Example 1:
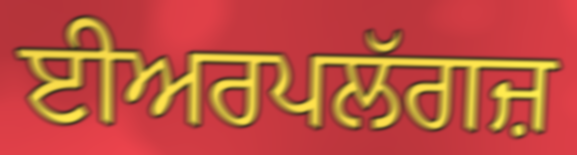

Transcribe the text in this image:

ਈਅਰਪਲੱਗਜ਼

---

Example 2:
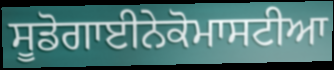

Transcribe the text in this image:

ਸੂਡੋਗਾਈਨੇਕੋਮਾਸਟੀਆ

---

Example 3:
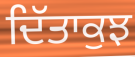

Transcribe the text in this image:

ਦਿੱਤਾਕੁਝ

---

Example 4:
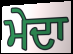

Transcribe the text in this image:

ਮੇਦਾ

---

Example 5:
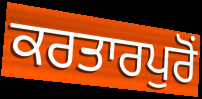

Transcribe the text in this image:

ਕਰਤਾਰਪੁਰੋਂ